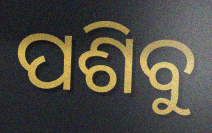
ପଶିବୁ